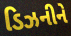
ડિઝનીને